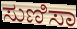
ಸುಣಿಸಾ